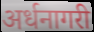
अर्धनागरी